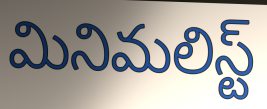
మినిమలిస్ట్